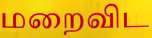
மறைவிட